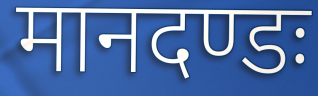
मानदण्डः